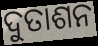
ଦୁତାଶନ